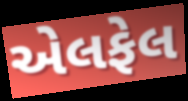
એલફેલ